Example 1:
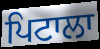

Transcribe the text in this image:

ਪਿਟਾਲਾ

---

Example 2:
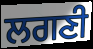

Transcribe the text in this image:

ਲਗਣੀ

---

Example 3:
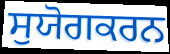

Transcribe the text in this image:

ਸੁਯੋਗਕਰਨ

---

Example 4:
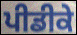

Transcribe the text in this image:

ਪੀਡੀਕੇ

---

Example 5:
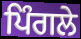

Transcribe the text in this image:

ਪਿੰਗਲੇ